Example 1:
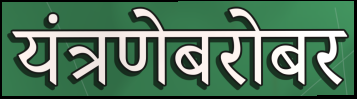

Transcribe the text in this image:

यंत्रणेबरोबर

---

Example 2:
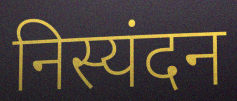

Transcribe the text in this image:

निस्यंदन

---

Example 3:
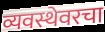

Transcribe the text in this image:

व्यवस्थेवरचा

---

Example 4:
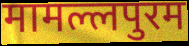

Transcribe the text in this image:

मामल्लपुरम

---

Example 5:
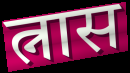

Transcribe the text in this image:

त्नास